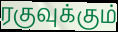
ரகுவுக்கும்